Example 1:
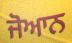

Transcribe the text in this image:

ਜੋਆਨ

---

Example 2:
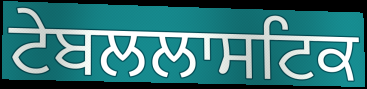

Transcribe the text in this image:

ਟੇਬਲਲਾਸਟਿਕ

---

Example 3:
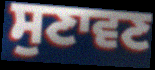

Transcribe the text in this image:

ਸੁਣਾਵਣ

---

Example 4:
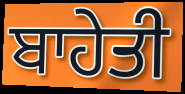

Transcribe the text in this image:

ਬਾਹੇਤੀ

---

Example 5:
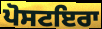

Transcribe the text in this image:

ਪੋਸਟਇਰਾ